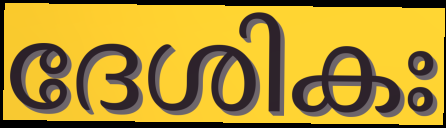
ദേശികഃ